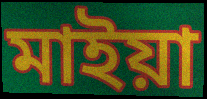
মাইয়া